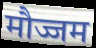
मौज्जम